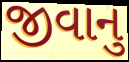
જીવાનુ